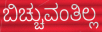
ಬಿಚ್ಚುವಂತಿಲ್ಲ